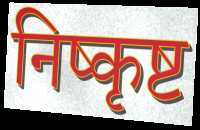
निष्कृष्ट